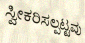
ಸ್ವೀಕರಿಸಲ್ಪಟ್ಟವು